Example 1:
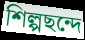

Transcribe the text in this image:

শিল্পছন্দে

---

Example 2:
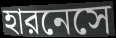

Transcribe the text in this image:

হারনেসে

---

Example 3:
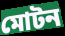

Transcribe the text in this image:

মোটন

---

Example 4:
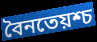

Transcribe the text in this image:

বৈনতেয়শ্চ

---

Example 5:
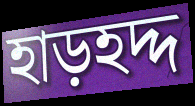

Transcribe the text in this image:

হাড়হদ্দ